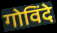
गोविंदे